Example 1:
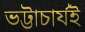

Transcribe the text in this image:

ভট্টাচাৰ্যই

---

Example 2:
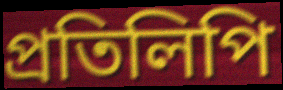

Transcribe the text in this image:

প্ৰতিলিপি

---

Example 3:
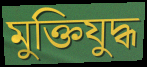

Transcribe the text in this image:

মুক্তিযুদ্ধ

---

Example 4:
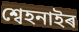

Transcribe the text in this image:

শ্বেহনাইৰ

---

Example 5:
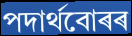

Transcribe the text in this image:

পদাৰ্থবোৰৰ